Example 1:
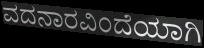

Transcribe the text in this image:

ವದನಾರವಿಂದೆಯಾಗಿ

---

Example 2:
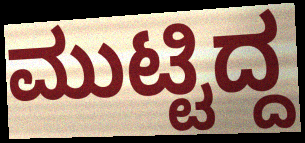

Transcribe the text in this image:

ಮುಟ್ಟಿದ್ದ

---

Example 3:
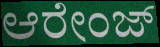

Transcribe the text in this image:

ಆರೇಂಜ್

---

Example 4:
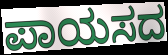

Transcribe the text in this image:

ಪಾಯಸದ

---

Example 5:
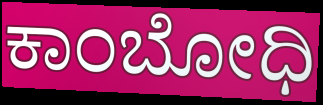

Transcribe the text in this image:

ಕಾಂಬೋಧಿ